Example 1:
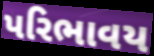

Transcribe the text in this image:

પરિભાવય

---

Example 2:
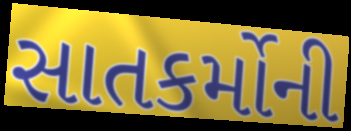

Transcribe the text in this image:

સાતકર્મોની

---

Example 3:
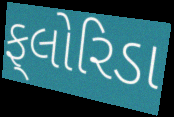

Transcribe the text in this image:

ફ્‌લોરિડા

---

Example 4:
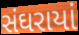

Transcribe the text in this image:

સંઘરાયાં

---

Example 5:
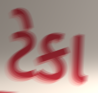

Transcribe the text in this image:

ટેકા